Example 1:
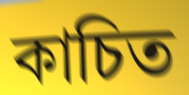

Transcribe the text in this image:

কাচিত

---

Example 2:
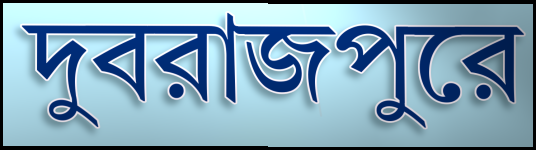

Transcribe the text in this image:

দুবরাজপুরে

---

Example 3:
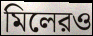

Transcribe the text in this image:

মিলেরও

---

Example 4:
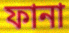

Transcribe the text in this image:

ফানা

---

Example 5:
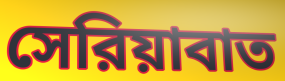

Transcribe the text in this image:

সেরিয়াবাত